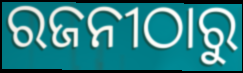
ରଜନୀଠାରୁ